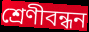
শ্রেণীবন্ধন